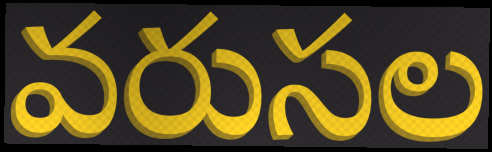
వరుసల